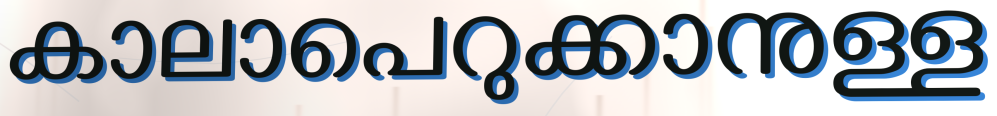
കാലാപെറുക്കാനുള്ള